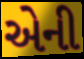
એની